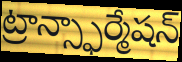
ట్రాన్స్ఫార్మేషన్